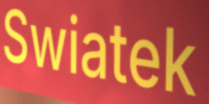
Swiatek